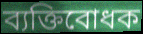
ব্যক্তিবোধক